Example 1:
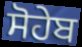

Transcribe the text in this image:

ਸੋਹੇਬ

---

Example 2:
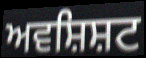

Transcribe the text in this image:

ਅਵਸ਼ਿਸ਼ਟ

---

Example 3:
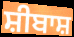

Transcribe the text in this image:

ਸ਼ੀਬਾਸ਼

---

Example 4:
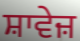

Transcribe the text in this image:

ਸ਼ਾਵੇਜ਼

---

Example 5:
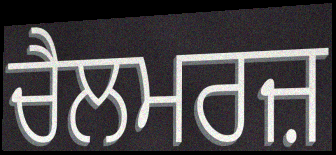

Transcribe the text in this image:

ਚੈਲਮਰਜ਼